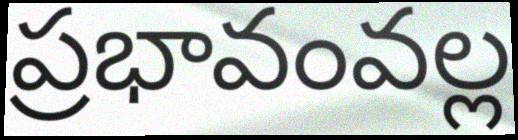
ప్రభావంవల్ల